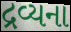
દ્રવ્યના